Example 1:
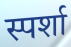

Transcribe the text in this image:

स्पर्शा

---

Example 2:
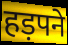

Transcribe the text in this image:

हड़पने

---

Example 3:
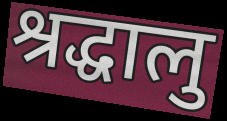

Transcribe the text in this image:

श्रद्धालु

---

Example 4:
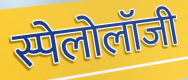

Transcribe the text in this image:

स्पेलोलॉजी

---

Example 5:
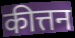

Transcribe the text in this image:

कीत्तन